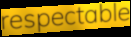
respectable